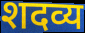
शदव्य